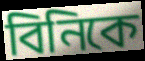
বিনিকে